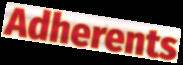
Adherents